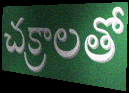
చక్రాలతో